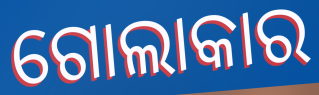
ଗୋଲାକାର